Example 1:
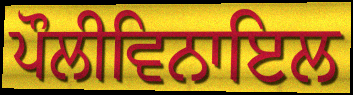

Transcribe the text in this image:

ਪੌਲੀਵਿਨਾਇਲ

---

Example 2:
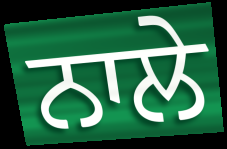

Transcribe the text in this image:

ਨਾਲੇ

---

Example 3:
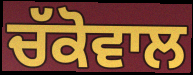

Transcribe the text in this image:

ਚੱਕੋਵਾਲ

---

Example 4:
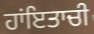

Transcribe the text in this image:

ਹਾਂਇਤਾਚੀ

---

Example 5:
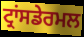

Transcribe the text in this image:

ਟ੍ਰਾਂਸਡੇਰਮਲ